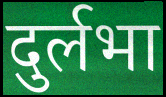
दुर्लभा